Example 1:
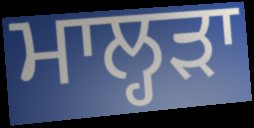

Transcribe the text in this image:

ਮਾਲ੍ਹੜਾ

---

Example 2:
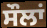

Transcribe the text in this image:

ਸੌਲਾਂ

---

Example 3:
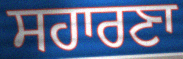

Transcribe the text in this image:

ਸਹਾਰਣਾ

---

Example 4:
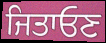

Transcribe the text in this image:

ਜਿਤਾਓਣ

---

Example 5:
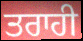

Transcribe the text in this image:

ਤਰਾਹੀ